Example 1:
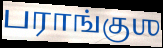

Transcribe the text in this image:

பராங்குஶ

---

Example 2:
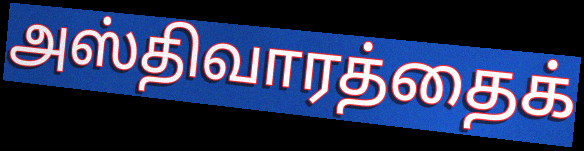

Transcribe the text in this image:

அஸ்திவாரத்தைக்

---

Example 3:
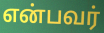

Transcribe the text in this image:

என்பவர்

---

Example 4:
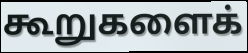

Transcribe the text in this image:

கூறுகளைக்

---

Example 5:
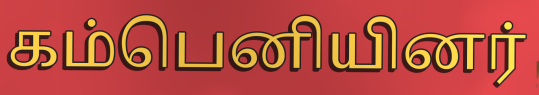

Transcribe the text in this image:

கம்பெனியினர்